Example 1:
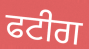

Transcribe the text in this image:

ਫਟੀਗ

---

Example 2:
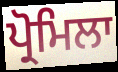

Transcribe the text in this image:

ਪ੍ਰੋਮਿਲਾ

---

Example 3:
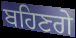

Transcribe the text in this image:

ਬਹਿਣਗੇ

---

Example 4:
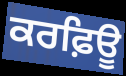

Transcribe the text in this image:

ਕਰਫ਼ਿਊ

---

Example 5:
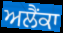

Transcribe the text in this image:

ਅਲੈਂਕਾ